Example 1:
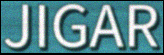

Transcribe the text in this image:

JIGAR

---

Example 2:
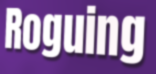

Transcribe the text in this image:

Roguing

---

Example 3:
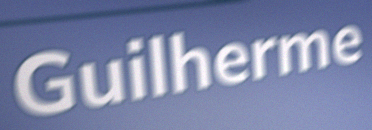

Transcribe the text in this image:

Guilherme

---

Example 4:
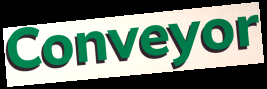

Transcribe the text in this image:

Conveyor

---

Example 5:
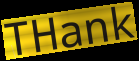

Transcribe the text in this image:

THank